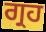
ਗ੍ਰਹ